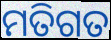
ମତିଗତ